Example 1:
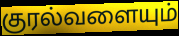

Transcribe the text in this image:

குரல்வளையும்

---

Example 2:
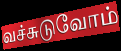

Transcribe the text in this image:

வச்சுடுவோம்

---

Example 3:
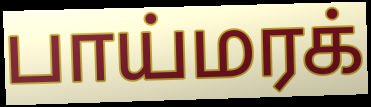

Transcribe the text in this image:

பாய்மரக்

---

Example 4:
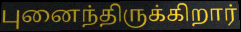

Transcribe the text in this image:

புனைந்திருக்கிறார்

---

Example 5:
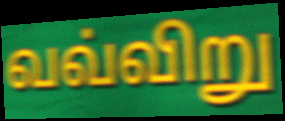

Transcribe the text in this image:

வவ்விறு